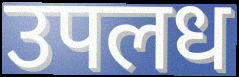
उपलध